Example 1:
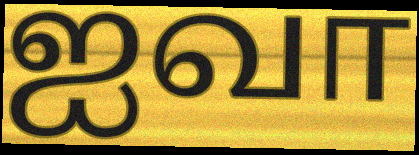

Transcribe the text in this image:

ஐவா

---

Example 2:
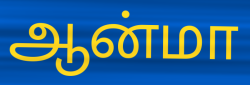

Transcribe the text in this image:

ஆன்மா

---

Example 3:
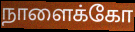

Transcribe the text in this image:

நாளைக்கோ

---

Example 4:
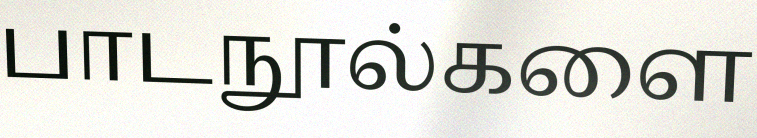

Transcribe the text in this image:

பாடநூல்களை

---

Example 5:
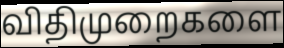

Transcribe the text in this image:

விதிமுறைகளை